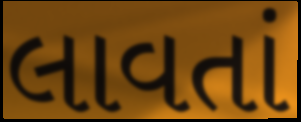
લાવતાં